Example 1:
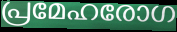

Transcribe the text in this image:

പ്രമേഹരോഗ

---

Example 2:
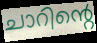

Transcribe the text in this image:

ചാറിന്റെ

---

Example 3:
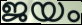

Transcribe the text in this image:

ജയം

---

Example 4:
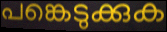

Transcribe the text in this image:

പങ്കെടുക്കുക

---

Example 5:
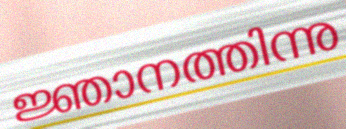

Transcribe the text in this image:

ജ്ഞാനത്തിന്നു